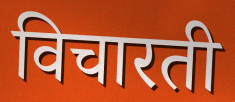
विचारती